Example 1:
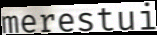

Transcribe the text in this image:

merestui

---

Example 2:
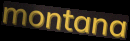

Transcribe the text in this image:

montana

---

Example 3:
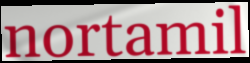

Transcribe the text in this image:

nortamil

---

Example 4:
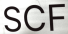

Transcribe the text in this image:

SCF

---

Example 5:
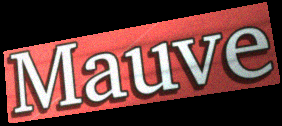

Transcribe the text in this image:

Mauve